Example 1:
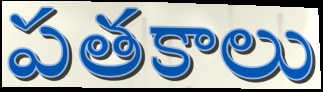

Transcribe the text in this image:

పతకాలు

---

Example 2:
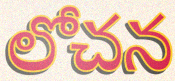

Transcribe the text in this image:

లోచన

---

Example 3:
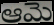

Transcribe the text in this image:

ఆమె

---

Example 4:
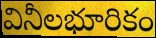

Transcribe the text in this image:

వినీలభూరికం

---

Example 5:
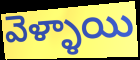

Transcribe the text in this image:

వెళ్ళాయి